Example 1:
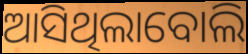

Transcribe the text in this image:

ଆସିଥିଲାବୋଲି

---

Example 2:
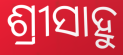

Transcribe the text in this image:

ଶ୍ରୀସାହୁ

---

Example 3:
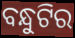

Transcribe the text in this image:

ବନ୍ଧୁଟିର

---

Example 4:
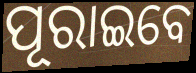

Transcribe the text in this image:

ପୂରାଇବେ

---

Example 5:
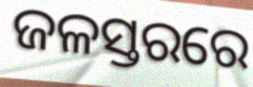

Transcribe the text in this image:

ଜଳସ୍ତରରେ